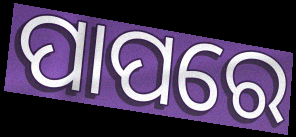
ପାପରେ